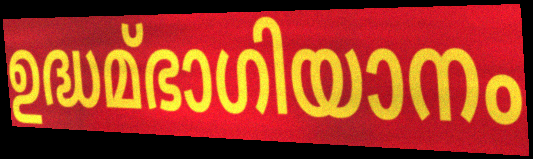
ഉദ്ധമ്ഭാഗിയാനം